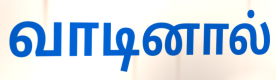
வாடினால்